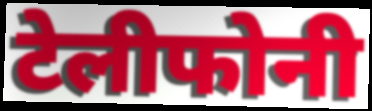
टेलीफोनी